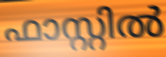
ഫാസ്റ്റിൽ